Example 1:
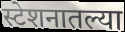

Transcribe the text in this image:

स्टेशनातल्या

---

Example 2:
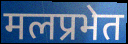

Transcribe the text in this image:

मलप्रभेत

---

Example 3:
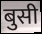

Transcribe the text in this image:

बुसी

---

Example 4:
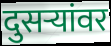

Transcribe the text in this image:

दुसर्‍यांवर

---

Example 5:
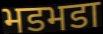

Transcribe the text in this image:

भडभडा